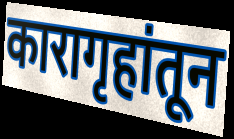
कारागृहांतून